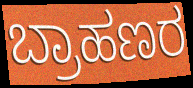
ಬ್ರಾಹಣರ